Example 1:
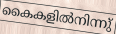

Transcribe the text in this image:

കൈകളിൽനിന്നു്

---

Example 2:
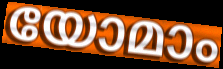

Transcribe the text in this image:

യോമാം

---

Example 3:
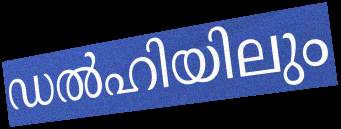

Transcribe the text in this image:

ഡൽഹിയിലും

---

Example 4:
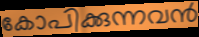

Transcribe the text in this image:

കോപിക്കുന്നവൻ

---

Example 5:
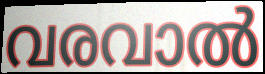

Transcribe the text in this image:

വരവാൽ